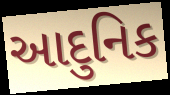
આદુનિક